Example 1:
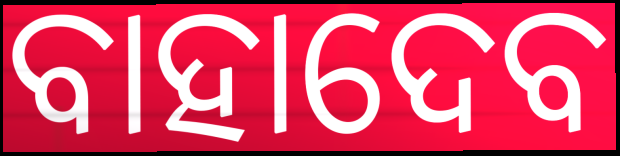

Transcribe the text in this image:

ବାହାଦେବ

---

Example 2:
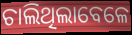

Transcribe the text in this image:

ଚାଲିଥିଲାବେଳେ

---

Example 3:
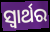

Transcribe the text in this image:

ସ୍ଵାର୍ଥର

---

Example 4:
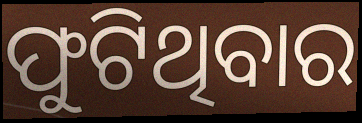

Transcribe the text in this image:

ଫୁଟିଥିବାର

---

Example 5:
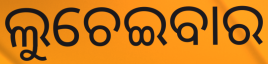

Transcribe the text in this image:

ଲୁଚେଇବାର